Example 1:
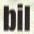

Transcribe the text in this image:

bil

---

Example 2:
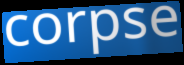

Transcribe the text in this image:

corpse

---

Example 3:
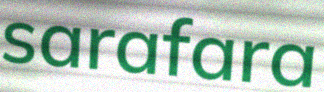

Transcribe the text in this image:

sarafara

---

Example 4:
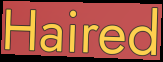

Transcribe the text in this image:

Haired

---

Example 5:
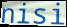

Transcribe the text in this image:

nisi